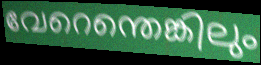
വേറെന്തെങ്കിലും